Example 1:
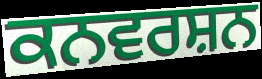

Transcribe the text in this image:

ਕਨਵਰਸ਼ਨ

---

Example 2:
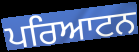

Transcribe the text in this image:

ਪਰਿਆਟਨ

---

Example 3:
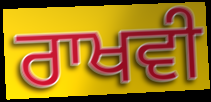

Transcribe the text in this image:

ਰਾਖਵੀ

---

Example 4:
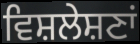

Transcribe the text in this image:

ਵਿਸ਼ਲੇਸ਼ਣਾਂ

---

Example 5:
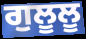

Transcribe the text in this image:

ਗੁਲੂਲੂ